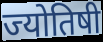
ज्योतिषी